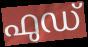
ഫുഡ്